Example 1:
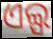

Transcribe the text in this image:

ଏଲ୍ସ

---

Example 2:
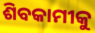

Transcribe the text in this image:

ଶିବକାମୀକୁ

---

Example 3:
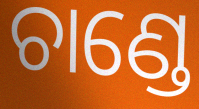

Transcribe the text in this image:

ଚାଣ୍ଡେ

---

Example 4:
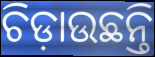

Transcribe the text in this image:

ଚିଡ଼ାଉଛନ୍ତି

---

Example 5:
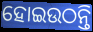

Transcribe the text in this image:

ହୋଇଉଠନ୍ତି